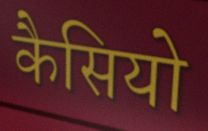
कैसियो